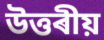
উত্তৰীয়